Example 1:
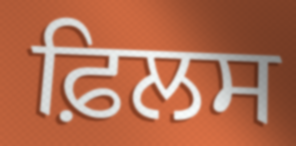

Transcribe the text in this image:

ਫ਼ਿਲਸ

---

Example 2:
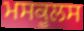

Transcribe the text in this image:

ਮਸਕੂਲਸ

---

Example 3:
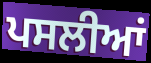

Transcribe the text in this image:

ਪਸਲੀਆਂ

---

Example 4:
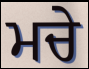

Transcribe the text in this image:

ਮਚੇ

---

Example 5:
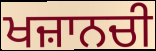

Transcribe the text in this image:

ਖਜ਼ਾਨਚੀ